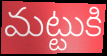
మట్టుకి